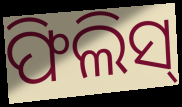
ଫିଲିସ୍